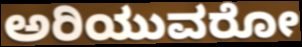
ಅರಿಯುವರೋ